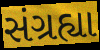
સંગ્રહ્યા